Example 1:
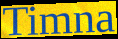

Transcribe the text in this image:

Timna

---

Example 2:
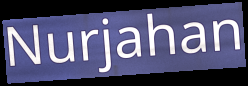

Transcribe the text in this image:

Nurjahan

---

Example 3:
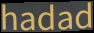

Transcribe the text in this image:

hadad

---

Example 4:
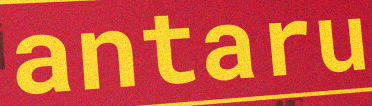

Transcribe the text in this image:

antaru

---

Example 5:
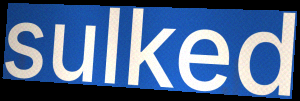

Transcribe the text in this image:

sulked